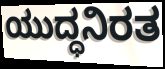
ಯುದ್ಧನಿರತ